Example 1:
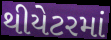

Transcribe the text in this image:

થીયેટરમાં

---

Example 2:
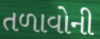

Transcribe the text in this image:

તળાવોની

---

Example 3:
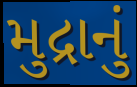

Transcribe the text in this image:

મુદ્રાનું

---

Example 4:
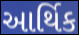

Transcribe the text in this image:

આર્થિક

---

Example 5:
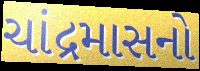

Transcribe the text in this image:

ચાંદ્રમાસનો